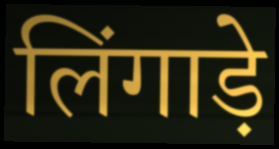
लिंगाड़े